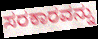
ಸರಕಾರವನ್ನು